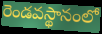
రెండవస్థానంలో